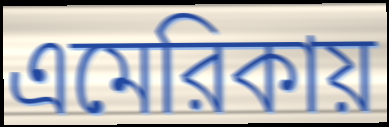
এমেরিকায়